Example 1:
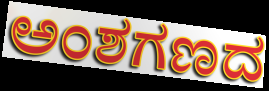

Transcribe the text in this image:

ಅಂಶಗಣದ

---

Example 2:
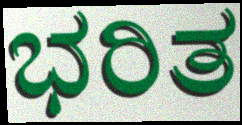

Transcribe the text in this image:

ಭರಿತ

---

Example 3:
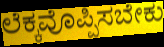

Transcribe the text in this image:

ಲೆಕ್ಕವೊಪ್ಪಿಸಬೇಕು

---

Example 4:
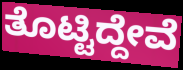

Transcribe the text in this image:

ತೊಟ್ಟಿದ್ದೇವೆ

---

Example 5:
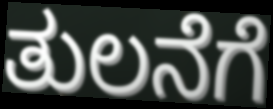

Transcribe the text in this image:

ತುಲನೆಗೆ